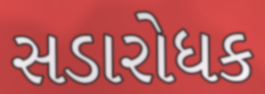
સડારોધક